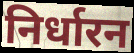
निर्धारन